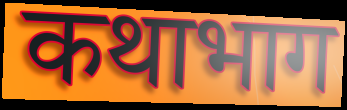
कथाभाग